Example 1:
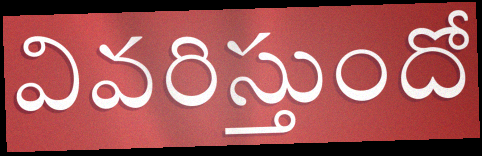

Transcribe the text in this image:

వివరిస్తుందో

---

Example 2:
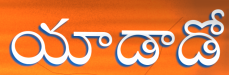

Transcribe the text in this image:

యాడాడో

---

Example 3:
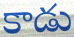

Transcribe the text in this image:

కాడు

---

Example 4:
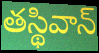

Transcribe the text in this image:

తస్థివాన్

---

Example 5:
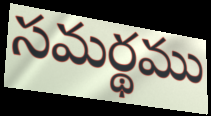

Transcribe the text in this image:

సమర్థము